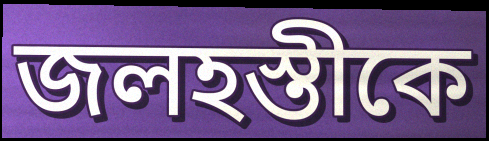
জলহস্তীকে